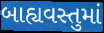
બાહ્યવસ્તુમાં